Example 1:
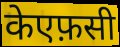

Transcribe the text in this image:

केएफ़सी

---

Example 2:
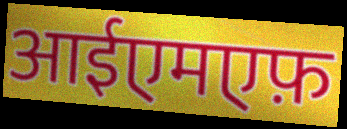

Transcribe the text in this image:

आईएमएफ़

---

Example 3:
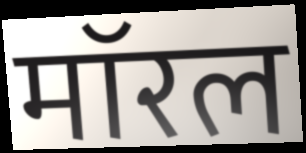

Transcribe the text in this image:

मॉरल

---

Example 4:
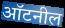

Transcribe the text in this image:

ऑटनील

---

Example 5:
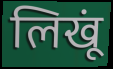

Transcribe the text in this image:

लिखूं